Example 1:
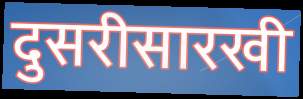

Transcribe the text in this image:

दुसरीसारखी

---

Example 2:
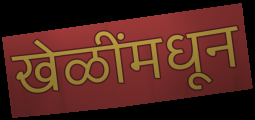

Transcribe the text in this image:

खेळींमधून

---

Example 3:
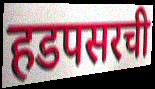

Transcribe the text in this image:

हडपसरची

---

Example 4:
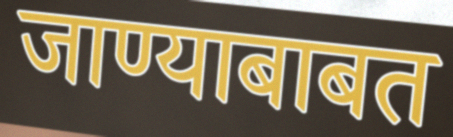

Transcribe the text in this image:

जाण्याबाबत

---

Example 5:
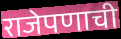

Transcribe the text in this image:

राजेपणाची